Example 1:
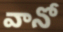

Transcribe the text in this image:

వానో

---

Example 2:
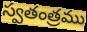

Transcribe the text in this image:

స్వతంత్రము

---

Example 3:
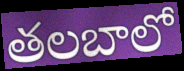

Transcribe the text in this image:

తలబాలో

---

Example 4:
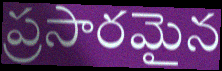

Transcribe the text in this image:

ప్రసారమైన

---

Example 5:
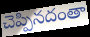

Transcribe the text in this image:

చెప్పినదంతా